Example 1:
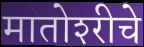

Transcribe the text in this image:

मातोश्रीचे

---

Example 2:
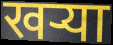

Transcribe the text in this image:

खऱ्या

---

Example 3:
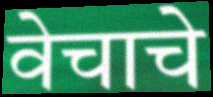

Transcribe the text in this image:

वेचाचे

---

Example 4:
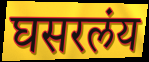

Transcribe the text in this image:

घसरलंय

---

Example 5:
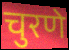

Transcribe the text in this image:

चुरणे